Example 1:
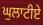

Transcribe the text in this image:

ਘੁਲਾਟੀਏ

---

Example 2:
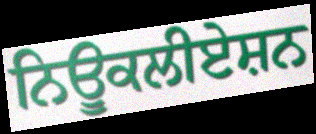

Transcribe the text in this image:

ਨਿਊਕਲੀਏਸ਼ਨ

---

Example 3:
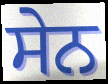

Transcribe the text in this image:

ਸੇਨ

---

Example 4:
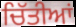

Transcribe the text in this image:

ਚਿੱਤੀਆਂ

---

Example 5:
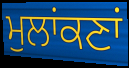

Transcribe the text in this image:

ਮੁਲਾਂਕਣਾਂ